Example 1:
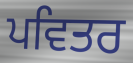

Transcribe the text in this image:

ਪਵਿਤਰ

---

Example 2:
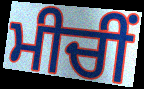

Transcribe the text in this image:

ਮੀਚੀਂ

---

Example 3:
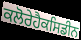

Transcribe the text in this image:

ਕਲੋਰੇਹੈਕਸਿਡੀਨ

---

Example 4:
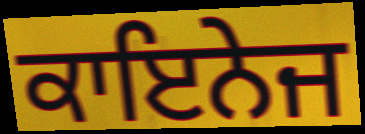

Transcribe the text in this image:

ਕਾਇਨੇਜ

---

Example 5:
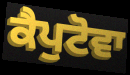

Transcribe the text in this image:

ਕੈਪੁਟੋਵਾ